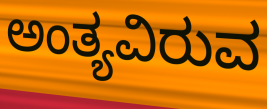
ಅಂತ್ಯವಿರುವ